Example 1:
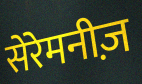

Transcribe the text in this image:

सेरेमनीज़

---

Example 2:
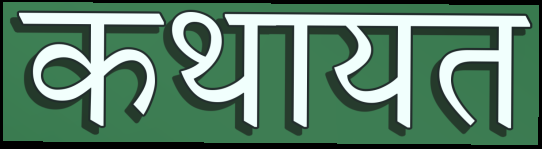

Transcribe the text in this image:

कथायत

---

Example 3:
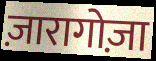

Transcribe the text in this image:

ज़ारागोज़ा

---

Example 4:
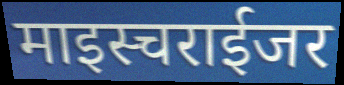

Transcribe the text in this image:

माइस्चराईजर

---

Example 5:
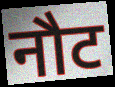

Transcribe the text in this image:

नौट